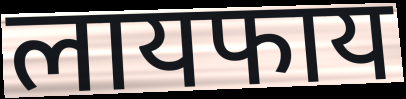
लायफाय